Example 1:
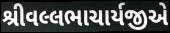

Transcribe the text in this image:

શ્રીવલ્લભાચાર્યજીએ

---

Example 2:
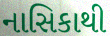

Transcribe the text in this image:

નાસિકાથી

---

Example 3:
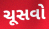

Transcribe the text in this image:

ચૂસવો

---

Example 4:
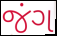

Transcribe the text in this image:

જંગ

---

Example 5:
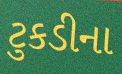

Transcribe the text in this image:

ટુકડીના